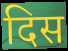
दिस